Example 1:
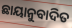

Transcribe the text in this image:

ଛାୟାନୁବାଦିତ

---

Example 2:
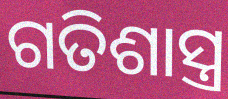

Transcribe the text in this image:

ଗତିଶାସ୍ତ୍ର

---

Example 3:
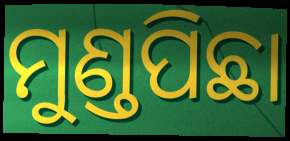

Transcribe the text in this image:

ମୁଣ୍ଡପିଛା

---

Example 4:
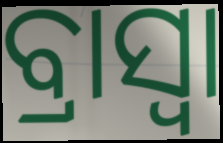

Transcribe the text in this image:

ବ୍ରାସ୍ବା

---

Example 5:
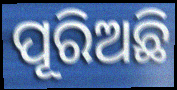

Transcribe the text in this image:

ପୂରିଅଛି